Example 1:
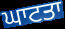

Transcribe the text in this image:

ਘਾਟਤਾ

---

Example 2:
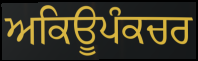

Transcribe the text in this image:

ਅਕਿਊਪੰਕਚਰ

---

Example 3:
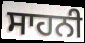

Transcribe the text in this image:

ਸਾਹਨੀ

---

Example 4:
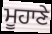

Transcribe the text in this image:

ਮੂਹਾਣੇ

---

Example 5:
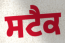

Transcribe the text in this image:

ਸਟੈਕ